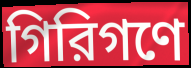
গিরিগণে